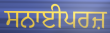
ਸਨਾਈਪਰਜ਼